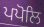
ਪਪੋਲਿ